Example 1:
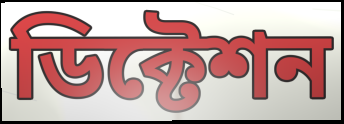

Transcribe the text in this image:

ডিক্টেশন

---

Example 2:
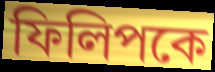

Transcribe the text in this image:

ফিলিপকে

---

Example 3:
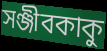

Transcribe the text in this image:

সঞ্জীবকাকু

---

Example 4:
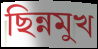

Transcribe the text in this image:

ছিন্নমুখ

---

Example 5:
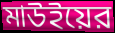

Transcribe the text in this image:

মাউইয়ের